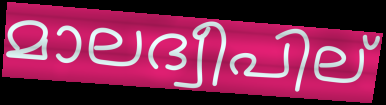
മാലദ്വീപില്